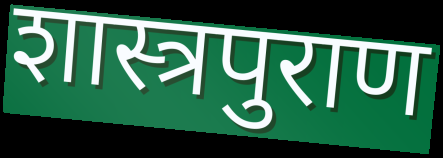
शास्त्रपुराण